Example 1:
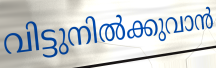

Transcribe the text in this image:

വിട്ടുനിൽക്കുവാൻ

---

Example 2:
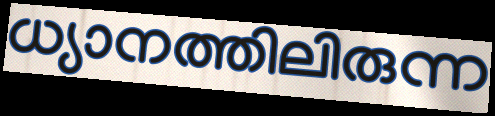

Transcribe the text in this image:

ധ്യാനത്തിലിരുന്ന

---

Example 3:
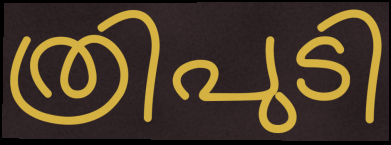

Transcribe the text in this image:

ത്രിപുടി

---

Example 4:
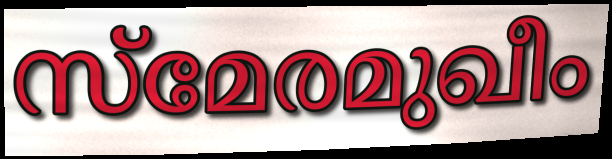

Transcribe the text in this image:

സ്മേരമുഖീം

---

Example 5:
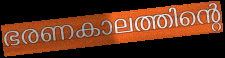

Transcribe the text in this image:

ഭരണകാലത്തിന്റെ